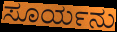
ಸೂರ್ಯನು